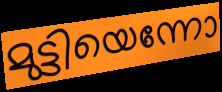
മുട്ടിയെന്നോ